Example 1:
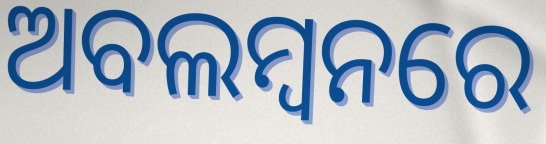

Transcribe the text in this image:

ଅବଲମ୍ବନରେ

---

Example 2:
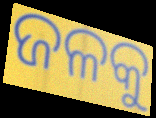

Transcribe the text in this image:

ଜଳକୁ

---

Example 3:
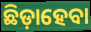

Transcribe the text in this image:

ଛିଡ଼ାହେବା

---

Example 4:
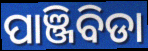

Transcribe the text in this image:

ପାଞ୍ଜିବିଡା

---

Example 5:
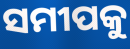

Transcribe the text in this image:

ସମୀପକୁ